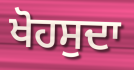
ਖੋਹਸੁਦਾ